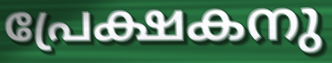
പ്രേക്ഷകനു